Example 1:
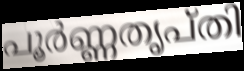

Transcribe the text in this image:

പൂർണ്ണതൃപ്തി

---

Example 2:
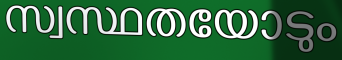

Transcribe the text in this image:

സ്വസ്ഥതയോടും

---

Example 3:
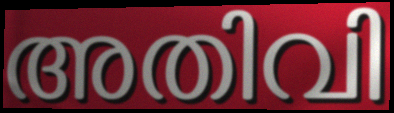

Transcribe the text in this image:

അതിവി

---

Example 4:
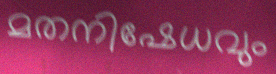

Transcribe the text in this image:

മതനിഷേധവും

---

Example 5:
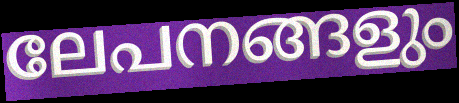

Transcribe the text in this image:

ലേപനങ്ങളും